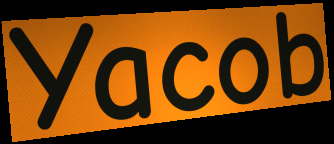
Yacob